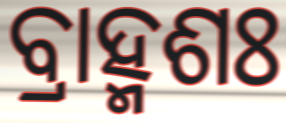
ବ୍ରାହ୍ମଶଃ